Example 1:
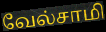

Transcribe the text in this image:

வேல்சாமி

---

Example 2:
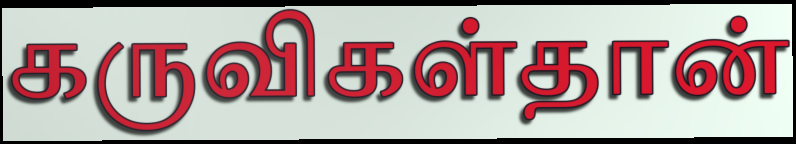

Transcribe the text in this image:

கருவிகள்தான்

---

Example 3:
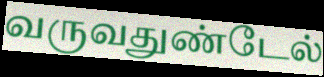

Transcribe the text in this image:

வருவதுண்டேல்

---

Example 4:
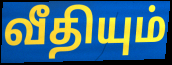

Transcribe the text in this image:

வீதியும்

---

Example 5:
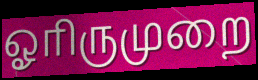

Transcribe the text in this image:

ஓரிருமுறை